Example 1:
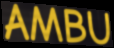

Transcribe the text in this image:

AMBU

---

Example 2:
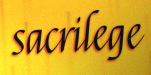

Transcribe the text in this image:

sacrilege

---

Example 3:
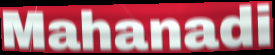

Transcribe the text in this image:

Mahanadi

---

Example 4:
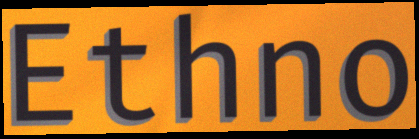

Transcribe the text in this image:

Ethno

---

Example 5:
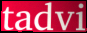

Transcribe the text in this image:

tadvi